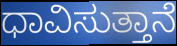
ಧಾವಿಸುತ್ತಾನೆ